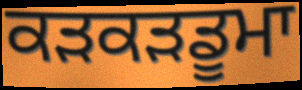
ਕੜਕੜਡੂਮਾ